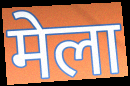
मेला